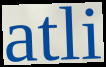
atli